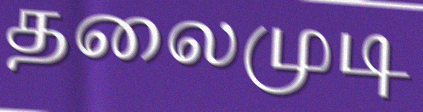
தலைமுடி